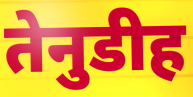
तेनुडीह